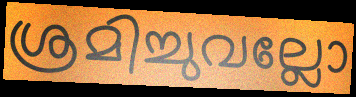
ശ്രമിച്ചുവല്ലോ